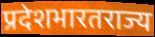
प्रदेशभारतराज्य